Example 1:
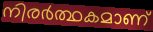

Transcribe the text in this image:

നിരർത്ഥകമാണ്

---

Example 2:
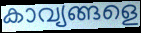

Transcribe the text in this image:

കാവ്യങ്ങളെ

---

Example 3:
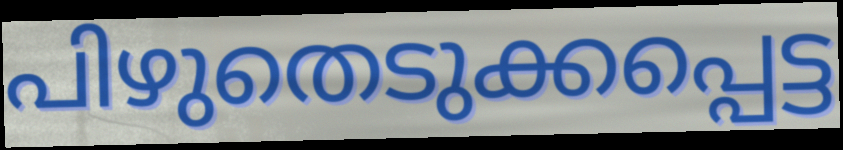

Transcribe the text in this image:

പിഴുതെടുക്കപ്പെട്ട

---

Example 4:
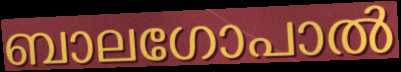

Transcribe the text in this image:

ബാലഗോപാൽ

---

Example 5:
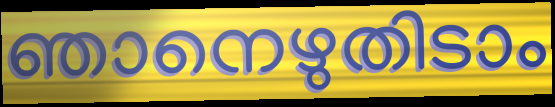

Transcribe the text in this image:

ഞാനെഴുതിടാം